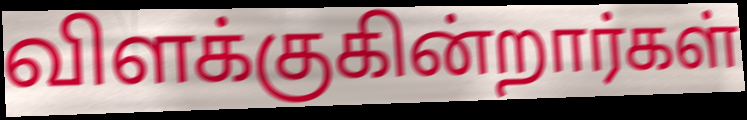
விளக்குகின்றார்கள்